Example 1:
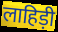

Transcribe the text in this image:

लाहिड़ी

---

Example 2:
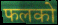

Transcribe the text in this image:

फलको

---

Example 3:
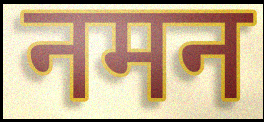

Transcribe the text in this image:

नमन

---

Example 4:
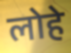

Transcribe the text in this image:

लोहे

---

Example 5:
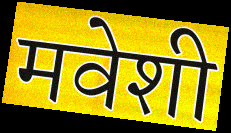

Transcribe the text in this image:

मवेशी